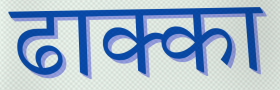
ढाक्का